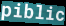
piblic